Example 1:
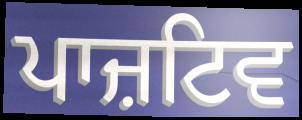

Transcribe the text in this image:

ਪਾਜ਼ਟਿਵ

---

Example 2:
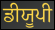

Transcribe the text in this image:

ਡੀਯੂਪੀ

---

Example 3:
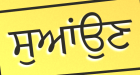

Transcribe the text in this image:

ਸੁਆਂਉਣ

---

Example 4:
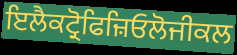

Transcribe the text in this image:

ਇਲੈਕਟ੍ਰੋਫਿਜ਼ਿਓਲੋਜੀਕਲ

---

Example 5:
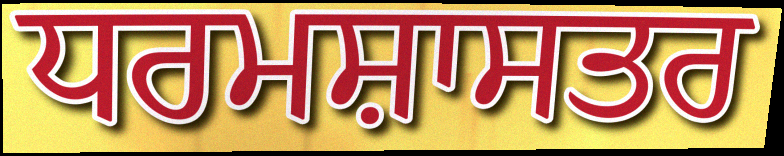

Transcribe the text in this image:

ਧਰਮਸ਼ਾਸਤਰ